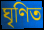
ঘৃণিত